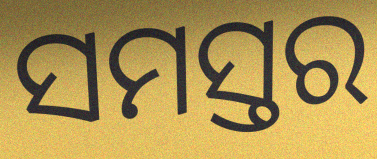
ସମସ୍ତର